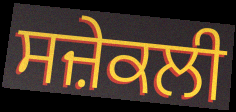
ਸਜ਼ੇਕਲੀ